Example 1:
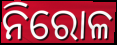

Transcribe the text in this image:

ନିରୋଳ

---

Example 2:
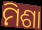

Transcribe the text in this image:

ମିଶା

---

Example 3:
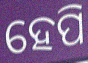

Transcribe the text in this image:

ହେପି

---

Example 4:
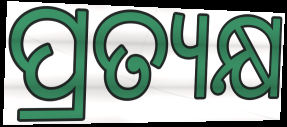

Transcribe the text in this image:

ପ୍ରତ୍ୟକ୍ଷ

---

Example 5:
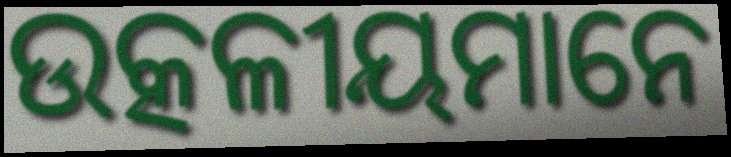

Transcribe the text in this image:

ଉତ୍କଳୀୟମାନେ